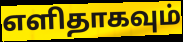
எளிதாகவும்